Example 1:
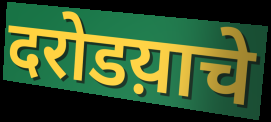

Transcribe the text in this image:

दरोडय़ाचे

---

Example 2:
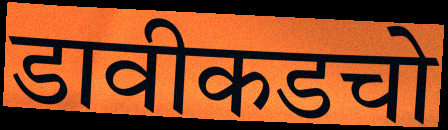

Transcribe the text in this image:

डावीकडचो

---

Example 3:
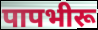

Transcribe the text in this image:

पापभीरू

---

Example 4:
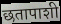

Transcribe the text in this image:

छतापाशी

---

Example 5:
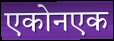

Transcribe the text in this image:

एकोनएक